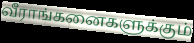
வீராங்கனைகளுக்கும்